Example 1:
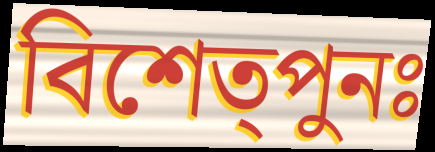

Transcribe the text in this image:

বিশেত্পুনঃ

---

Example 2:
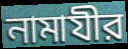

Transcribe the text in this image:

নামাযীর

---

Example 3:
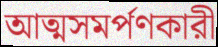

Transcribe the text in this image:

আত্মসমর্পণকারী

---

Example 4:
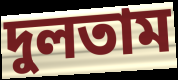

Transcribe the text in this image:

দুলতাম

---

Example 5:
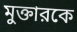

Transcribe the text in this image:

মুক্তারকে